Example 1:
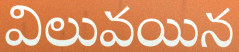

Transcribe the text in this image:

విలువయిన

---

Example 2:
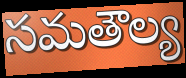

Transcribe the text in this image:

సమతౌల్య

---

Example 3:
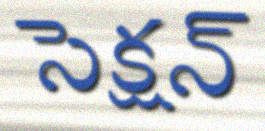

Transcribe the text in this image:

సెక్షన్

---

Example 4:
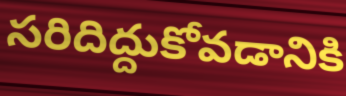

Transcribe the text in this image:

సరిదిద్దుకోవడానికి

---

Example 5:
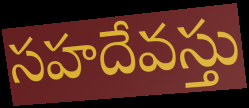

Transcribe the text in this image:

సహదేవస్తు